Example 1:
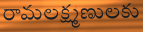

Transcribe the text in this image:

రామలక్ష్మణులకు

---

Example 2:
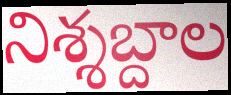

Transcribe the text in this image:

నిశ్శబ్దాల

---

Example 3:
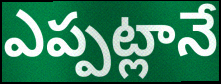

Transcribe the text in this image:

ఎప్పట్లానే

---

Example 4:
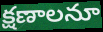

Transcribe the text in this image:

క్షణాలనూ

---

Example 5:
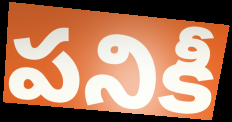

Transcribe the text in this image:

పనికీ